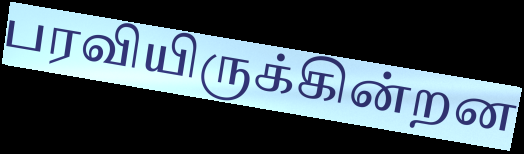
பரவியிருக்கின்றன